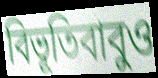
বিভূতিবাবুও